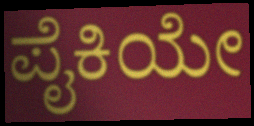
ಪೈಕಿಯೇ